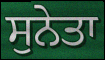
ਸੁਨੇਤਾ